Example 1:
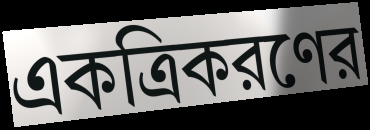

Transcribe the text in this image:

একত্রিকরণের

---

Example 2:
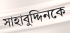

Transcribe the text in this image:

সাহাবুদ্দিনকে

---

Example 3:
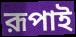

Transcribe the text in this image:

রূপাই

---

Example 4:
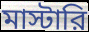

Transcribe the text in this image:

মাস্টারি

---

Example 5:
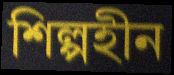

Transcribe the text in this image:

শিল্পহীন